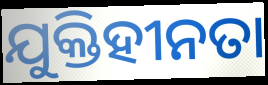
ଯୁକ୍ତିହୀନତା